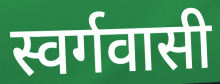
स्वर्गवासी